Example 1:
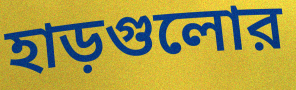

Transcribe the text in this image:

হাড়গুলোর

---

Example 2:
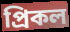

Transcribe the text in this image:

প্রিকল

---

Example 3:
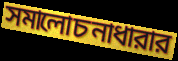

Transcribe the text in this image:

সমালোচনাধারার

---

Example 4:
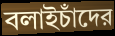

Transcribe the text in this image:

বলাইচাঁদের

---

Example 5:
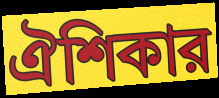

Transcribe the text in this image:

ঐশিকার